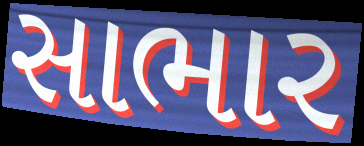
સાભાર